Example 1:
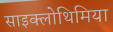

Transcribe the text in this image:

साइक्लोथिमिया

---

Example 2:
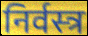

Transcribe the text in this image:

निर्वस्त्र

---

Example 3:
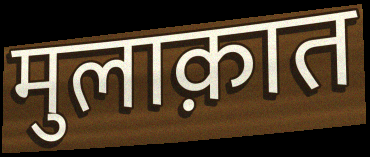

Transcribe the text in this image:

मुलाक़ात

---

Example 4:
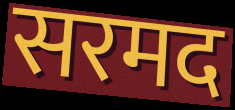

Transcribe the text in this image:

सरमद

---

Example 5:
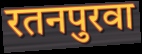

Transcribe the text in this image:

रतनपुरवा